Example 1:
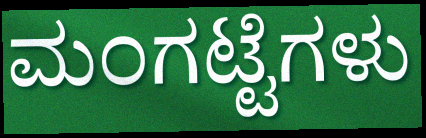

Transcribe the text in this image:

ಮಂಗಟ್ಟೆಗಳು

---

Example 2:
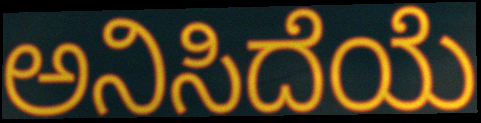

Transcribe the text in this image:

ಅನಿಸಿದೆಯೆ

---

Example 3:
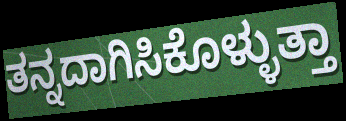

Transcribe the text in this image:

ತನ್ನದಾಗಿಸಿಕೊಳ್ಳುತ್ತಾ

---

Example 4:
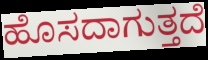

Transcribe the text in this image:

ಹೊಸದಾಗುತ್ತದೆ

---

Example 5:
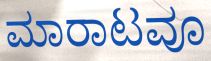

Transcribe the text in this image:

ಮಾರಾಟವೂ